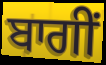
ਬਾਗੀਂ